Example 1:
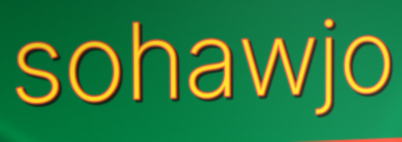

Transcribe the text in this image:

sohawjo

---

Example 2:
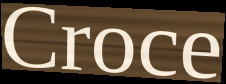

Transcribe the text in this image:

Croce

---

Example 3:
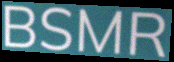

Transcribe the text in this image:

BSMR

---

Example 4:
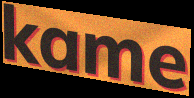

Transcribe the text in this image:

kame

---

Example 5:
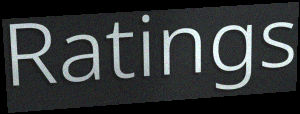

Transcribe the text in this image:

Ratings